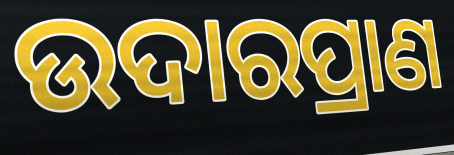
ଉଦାରପ୍ରାଣ